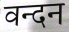
वन्दन